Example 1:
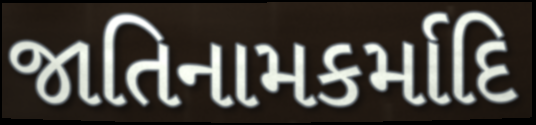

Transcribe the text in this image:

જાતિનામકર્માદિ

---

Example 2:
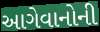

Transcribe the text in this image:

આગેવાનોની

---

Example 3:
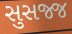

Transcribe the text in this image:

સુસજ્જ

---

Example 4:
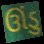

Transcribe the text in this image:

ઊંડુ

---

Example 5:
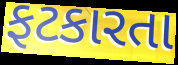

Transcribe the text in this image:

ફટકારતા